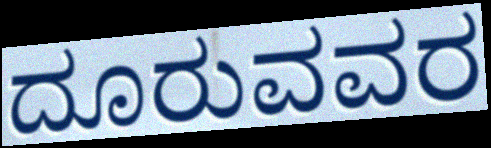
ದೂರುವವರ